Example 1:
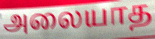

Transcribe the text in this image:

அலையாத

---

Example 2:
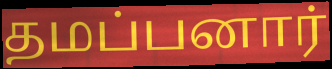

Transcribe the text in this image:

தமப்பனார்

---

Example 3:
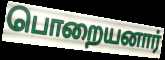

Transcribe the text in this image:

பொறையனார்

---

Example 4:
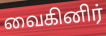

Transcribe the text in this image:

வைகினிர்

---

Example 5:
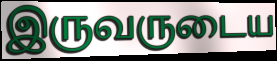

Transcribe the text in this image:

இருவருடைய